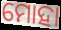
ମୋହା